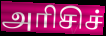
அரிசிச்